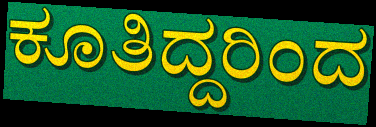
ಕೂತಿದ್ದರಿಂದ